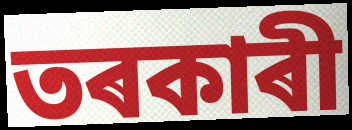
তৰকাৰী